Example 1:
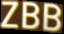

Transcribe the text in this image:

ZBB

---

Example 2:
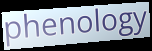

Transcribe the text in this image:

phenology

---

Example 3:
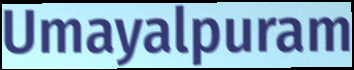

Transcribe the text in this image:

Umayalpuram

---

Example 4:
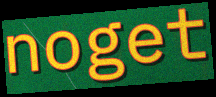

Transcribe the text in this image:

noget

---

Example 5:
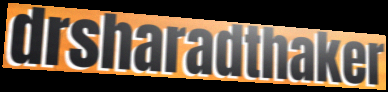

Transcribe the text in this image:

drsharadthaker